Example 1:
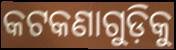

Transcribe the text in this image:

କଟକଣାଗୁଡ଼ିକୁ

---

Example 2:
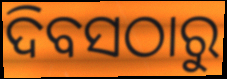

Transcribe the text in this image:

ଦିବସଠାରୁ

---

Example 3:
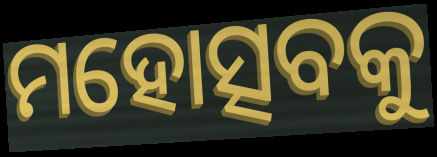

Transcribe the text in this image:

ମହୋତ୍ସବକୁ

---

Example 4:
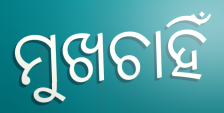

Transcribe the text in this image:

ମୁଖଚାହିଁ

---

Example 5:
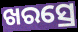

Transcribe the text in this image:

ଖରସ୍ରେ